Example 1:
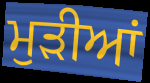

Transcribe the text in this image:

ਮੁੜੀਆਂ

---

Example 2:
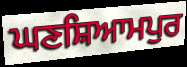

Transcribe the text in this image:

ਘਣਸ਼ਿਆਮਪੁਰ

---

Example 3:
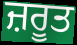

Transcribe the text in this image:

ਜ਼ਰੂਤ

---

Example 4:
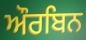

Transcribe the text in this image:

ਔਰਬਿਨ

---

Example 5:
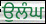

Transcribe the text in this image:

ਉਲੰਘ